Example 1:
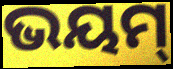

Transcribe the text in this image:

ଭୟମ୍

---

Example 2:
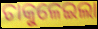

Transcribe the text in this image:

ଚାକୁଳେଇଲା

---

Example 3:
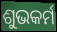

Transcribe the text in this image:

ଶୁଭକର୍ମ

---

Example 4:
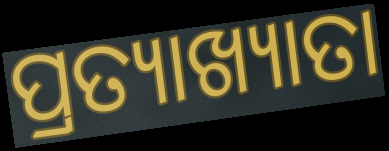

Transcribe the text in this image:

ପ୍ରତ୍ୟାଖ୍ୟାତା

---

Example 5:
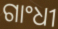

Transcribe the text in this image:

ଗାଂଧୀ